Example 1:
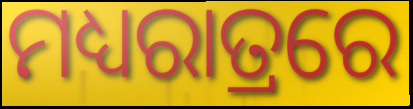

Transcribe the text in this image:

ମଧ୍ୟରାତ୍ରରେ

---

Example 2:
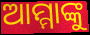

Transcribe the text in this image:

ଆମ୍ମାଙ୍କୁ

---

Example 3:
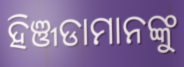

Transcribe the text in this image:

ହିଞ୍ଜଡାମାନଙ୍କୁ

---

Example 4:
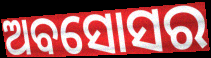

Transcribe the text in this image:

ଅବସୋସର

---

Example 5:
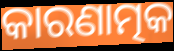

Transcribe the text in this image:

କାରଣାତ୍ମକ